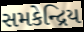
સમકેન્દ્રિય